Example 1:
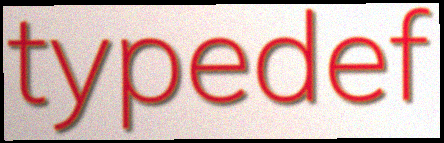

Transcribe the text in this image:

typedef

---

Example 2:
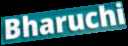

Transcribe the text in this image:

Bharuchi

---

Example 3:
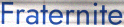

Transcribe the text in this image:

Fraternite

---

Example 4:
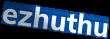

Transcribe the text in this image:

ezhuthu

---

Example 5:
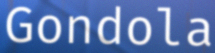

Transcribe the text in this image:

Gondola